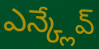
ఎన్క్లేవ్